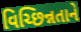
વિચ્છિન્નતાને